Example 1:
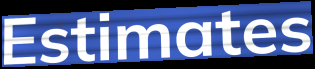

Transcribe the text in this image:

Estimates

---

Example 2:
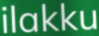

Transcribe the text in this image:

ilakku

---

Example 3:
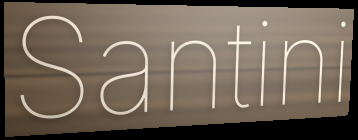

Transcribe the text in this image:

Santini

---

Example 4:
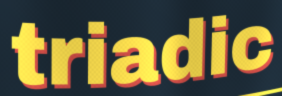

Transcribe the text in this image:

triadic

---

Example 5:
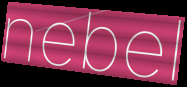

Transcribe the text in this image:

nebel